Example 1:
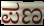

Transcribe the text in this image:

ಪಣ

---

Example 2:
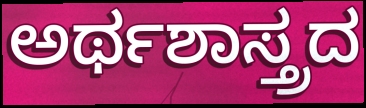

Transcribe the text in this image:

ಅರ್ಥಶಾಸ್ತ್ರದ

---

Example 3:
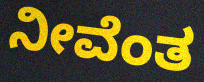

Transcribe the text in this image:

ನೀವೆಂತ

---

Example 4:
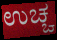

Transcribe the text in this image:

ಉಚ್ಚ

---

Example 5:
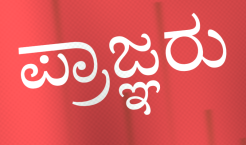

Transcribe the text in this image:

ಪ್ರಾಜ್ಞರು